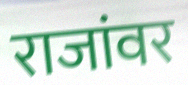
राजांवर